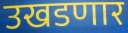
उखडणार